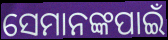
ସେମାନଙ୍କପାଇଁ